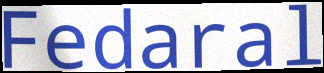
Fedaral